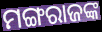
ମଙ୍ଗରାଜଙ୍କ